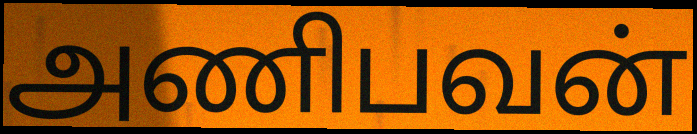
அணிபவன்